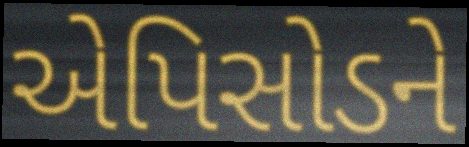
એપિસોડને